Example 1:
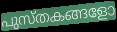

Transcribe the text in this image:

പുസ്തകങ്ങളോ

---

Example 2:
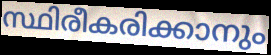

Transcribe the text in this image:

സ്ഥിരീകരിക്കാനും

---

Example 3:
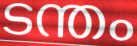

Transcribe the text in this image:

ടന്തം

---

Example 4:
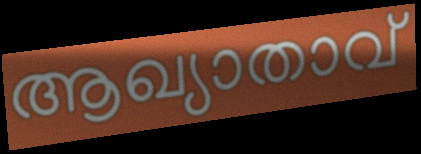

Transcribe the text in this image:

ആഖ്യാതാവ്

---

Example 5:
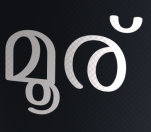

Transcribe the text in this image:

മൂര്